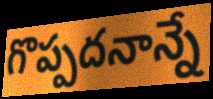
గొప్పదనాన్నే